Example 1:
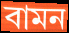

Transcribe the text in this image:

বামন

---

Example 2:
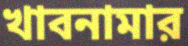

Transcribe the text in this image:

খাবনামার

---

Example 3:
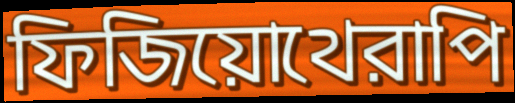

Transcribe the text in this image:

ফিজিয়োথেরাপি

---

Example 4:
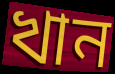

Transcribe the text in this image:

খান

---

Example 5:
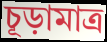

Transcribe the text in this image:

চূড়ামাত্র